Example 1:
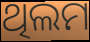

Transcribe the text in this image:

ଥିଲମ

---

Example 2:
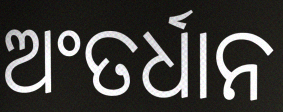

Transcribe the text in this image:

ଅଂତର୍ଧାନ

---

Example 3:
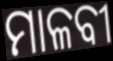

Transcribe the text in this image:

ମାଳବୀ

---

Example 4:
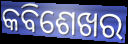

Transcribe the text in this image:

କବିଶେଖର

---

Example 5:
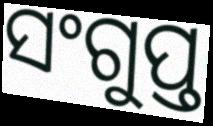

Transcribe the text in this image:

ସଂଗୁପ୍ତ